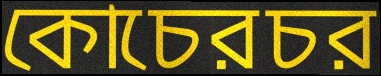
কোচেরচর